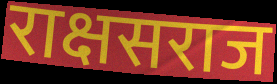
राक्षसराज